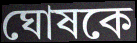
ঘোষকে